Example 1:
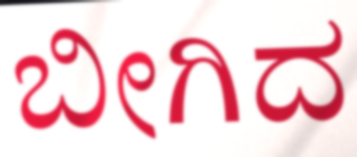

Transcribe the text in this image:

ಬೀಗಿದ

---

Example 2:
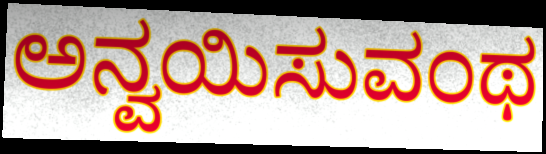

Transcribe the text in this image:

ಅನ್ವಯಿಸುವಂಥ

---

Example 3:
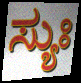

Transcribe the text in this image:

ಸ್ಯುಃ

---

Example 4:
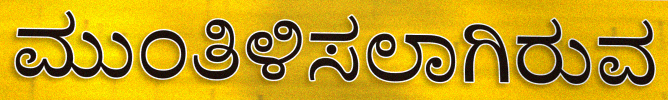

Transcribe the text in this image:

ಮುಂತಿಳಿಸಲಾಗಿರುವ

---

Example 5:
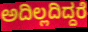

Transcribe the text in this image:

ಅದಿಲ್ಲದಿದ್ದರೆ